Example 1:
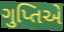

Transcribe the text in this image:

ગુપ્તિએ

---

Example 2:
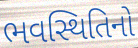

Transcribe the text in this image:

ભવસ્થિતિનો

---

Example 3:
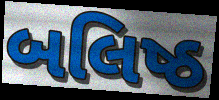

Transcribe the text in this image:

બલિષ્ઠ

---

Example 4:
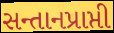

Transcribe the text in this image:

સન્તાનપ્રાપ્તી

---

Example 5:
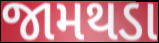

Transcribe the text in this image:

જામથડા